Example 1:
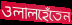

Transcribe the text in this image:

ওলালহেঁতেন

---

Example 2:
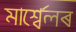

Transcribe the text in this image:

মাৰ্শ্বেলৰ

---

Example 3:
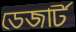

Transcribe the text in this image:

ডেজাৰ্ট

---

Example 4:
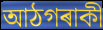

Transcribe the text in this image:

আঠগৰাকী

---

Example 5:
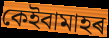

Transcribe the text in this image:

কেইবামাহৰ